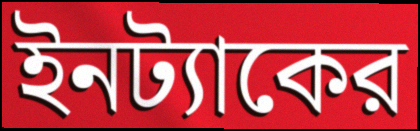
ইনট্যাকের